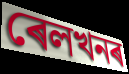
ৰেলখনৰ